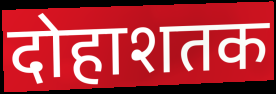
दोहाशतक